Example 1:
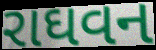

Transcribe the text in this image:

રાઘવન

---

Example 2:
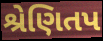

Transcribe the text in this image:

શ્રેણિતપ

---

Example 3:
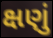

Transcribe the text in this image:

ક્ષણું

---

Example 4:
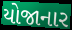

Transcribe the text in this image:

યોજાનાર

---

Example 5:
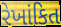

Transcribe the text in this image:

રેખાંકિત